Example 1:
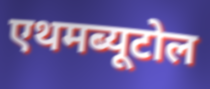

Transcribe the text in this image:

एथमब्यूटोल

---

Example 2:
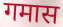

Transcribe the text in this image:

गमास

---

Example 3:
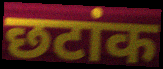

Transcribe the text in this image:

छटांक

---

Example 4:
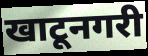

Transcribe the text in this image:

खाटूनगरी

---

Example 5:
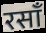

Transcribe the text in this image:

रसाँ